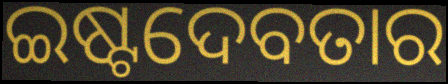
ଇଷ୍ଟଦେବତାର